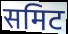
समिट